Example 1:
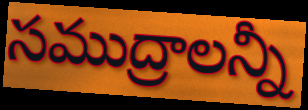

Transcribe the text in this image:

సముద్రాలన్నీ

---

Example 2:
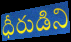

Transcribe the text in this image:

ధీరుడిని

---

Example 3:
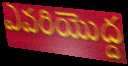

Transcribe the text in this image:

ఎవరియొద్ద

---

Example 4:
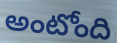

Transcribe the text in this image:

అంటోంది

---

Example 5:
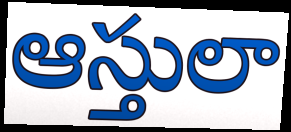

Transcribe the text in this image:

ఆస్తులా